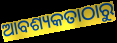
ଆବଶ୍ୟକତାଠାରୁ